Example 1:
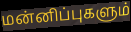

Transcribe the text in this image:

மன்னிப்புகளும்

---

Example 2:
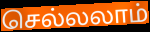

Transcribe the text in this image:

செல்லலாம்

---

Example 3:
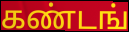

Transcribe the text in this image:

கண்டங்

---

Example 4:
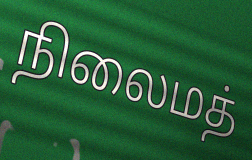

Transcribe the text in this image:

நிலைமத்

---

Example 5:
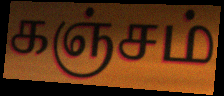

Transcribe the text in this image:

கஞ்சம்